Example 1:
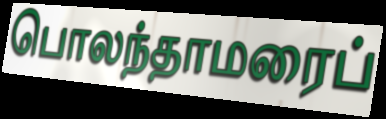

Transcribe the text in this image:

பொலந்தாமரைப்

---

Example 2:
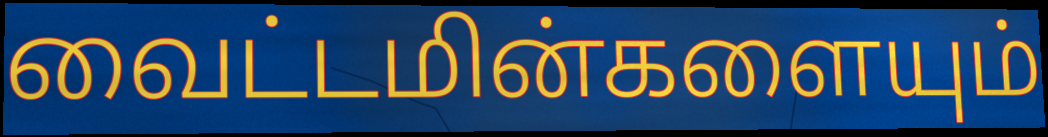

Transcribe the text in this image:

வைட்டமின்களையும்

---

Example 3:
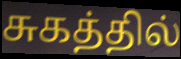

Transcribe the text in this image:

சுகத்தில்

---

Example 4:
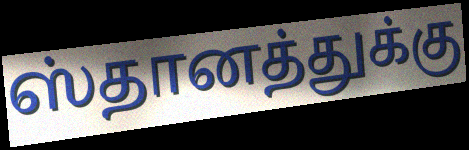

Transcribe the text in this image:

ஸ்தானத்துக்கு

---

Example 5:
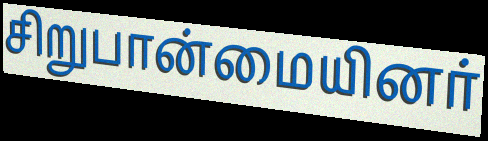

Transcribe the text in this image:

சிறுபான்மையினர்